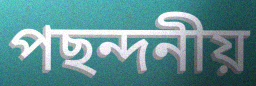
পছন্দনীয়